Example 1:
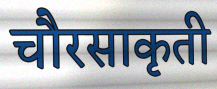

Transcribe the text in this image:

चौरसाकृती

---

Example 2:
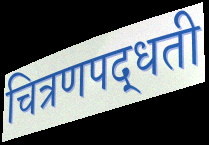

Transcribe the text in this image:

चित्रणपद्धती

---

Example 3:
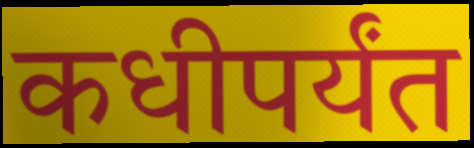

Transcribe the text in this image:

कधीपर्यंत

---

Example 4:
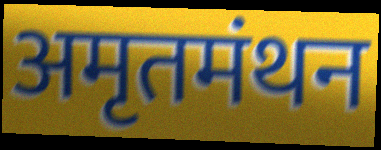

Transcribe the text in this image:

अमृतमंथन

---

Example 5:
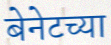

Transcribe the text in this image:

बेनेटच्या